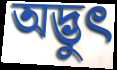
অদ্ভুৎ